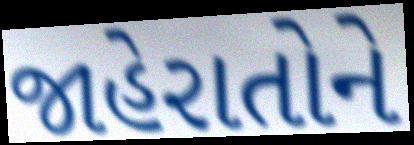
જાહેરાતોને